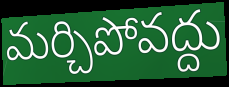
మర్చిపోవద్దు